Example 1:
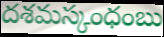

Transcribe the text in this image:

దశమస్కంధంబు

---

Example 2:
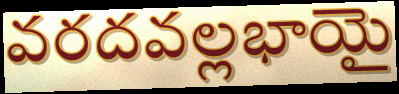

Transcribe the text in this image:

వరదవల్లభాయై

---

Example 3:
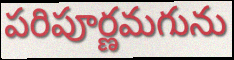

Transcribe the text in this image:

పరిపూర్ణమగును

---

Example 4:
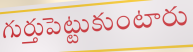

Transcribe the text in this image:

గుర్తుపెట్టుకుంటారు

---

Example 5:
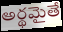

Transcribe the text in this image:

అర్థమైతే